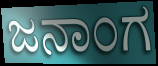
ಜನಾಂಗ